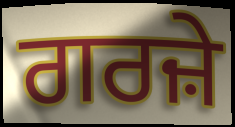
ਗਰਜ਼ੇ